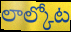
లాల్కోట